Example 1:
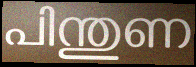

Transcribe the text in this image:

പിന്തുണ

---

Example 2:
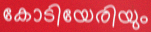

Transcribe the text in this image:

കോടിയേരിയും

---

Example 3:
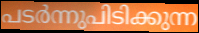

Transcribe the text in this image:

പടർന്നുപിടിക്കുന്ന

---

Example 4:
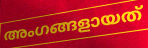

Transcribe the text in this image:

അംഗങ്ങളായത്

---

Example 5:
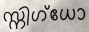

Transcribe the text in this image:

സ്നിഗ്ധോ